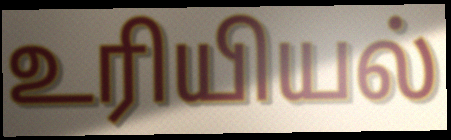
உரியியல்